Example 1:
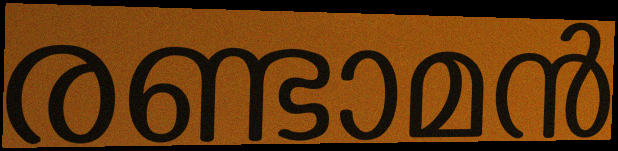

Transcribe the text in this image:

രണ്ടാമൻ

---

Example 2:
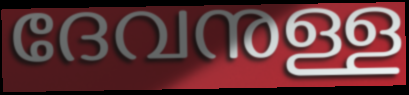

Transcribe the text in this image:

ദേവനുള്ള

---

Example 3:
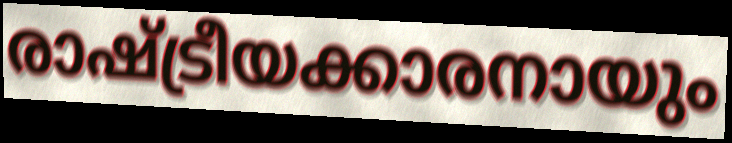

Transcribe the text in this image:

രാഷ്ട്രീയക്കാരനായും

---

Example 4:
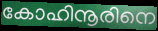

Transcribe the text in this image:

കോഹിനൂരിനെ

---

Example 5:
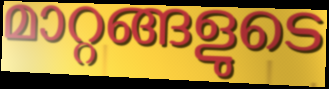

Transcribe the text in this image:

മാറ്റങ്ങളുടെ